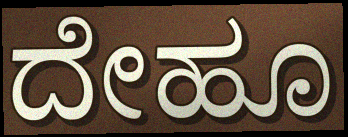
ದೇಹೂ